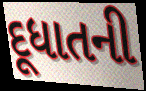
દૂધાતની